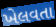
ખેલવતા